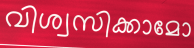
വിശ്വസിക്കാമോ